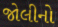
જોલીનો